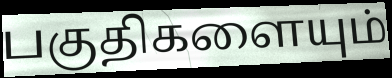
பகுதிகளையும்